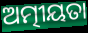
ଅତ୍ମୀୟତା